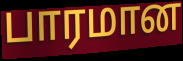
பாரமான